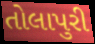
તોલાપુરી